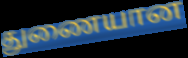
துணையான